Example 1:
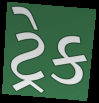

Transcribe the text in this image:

ટ્રેક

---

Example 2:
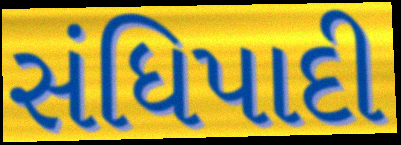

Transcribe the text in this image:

સંધિપાદી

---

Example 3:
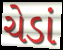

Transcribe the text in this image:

ચેડાં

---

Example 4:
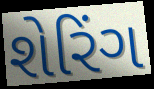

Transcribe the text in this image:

શેરિંગ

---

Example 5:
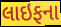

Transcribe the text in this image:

લાઇફના